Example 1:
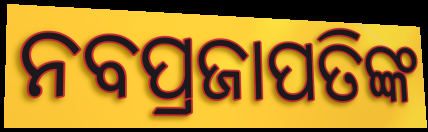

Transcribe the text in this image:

ନବପ୍ରଜାପତିଙ୍କ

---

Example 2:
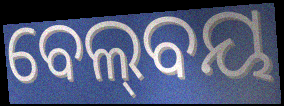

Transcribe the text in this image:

ବେଲ୍‍ବୟ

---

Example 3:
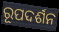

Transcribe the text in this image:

ରୂପଦର୍ଶନ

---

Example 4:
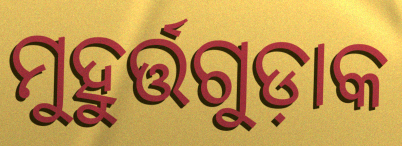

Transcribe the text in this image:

ମୁହୁର୍ତ୍ତଗୁଡ଼ାକ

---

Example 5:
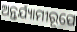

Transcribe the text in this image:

ଅନ୍ତର୍ଯ୍ୟାମୀରୂପେ